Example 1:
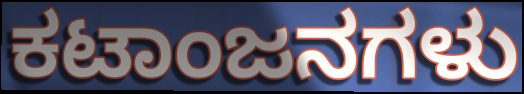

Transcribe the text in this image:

ಕಟಾಂಜನಗಳು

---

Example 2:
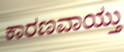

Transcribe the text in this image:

ಕಾರಣವಾಯ್ತು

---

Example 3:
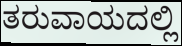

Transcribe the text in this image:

ತರುವಾಯದಲ್ಲಿ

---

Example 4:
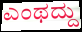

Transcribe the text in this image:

ಎಂಥದ್ದು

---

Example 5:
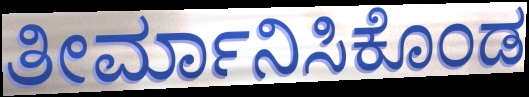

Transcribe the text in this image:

ತೀರ್ಮಾನಿಸಿಕೊಂಡ